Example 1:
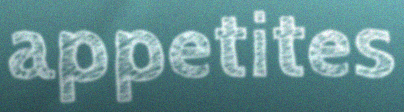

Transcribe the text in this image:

appetites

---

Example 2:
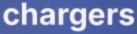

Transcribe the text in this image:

chargers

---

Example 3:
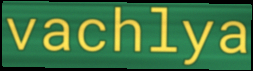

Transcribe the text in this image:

vachlya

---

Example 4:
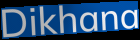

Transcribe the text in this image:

Dikhana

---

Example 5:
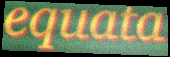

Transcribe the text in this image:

equata